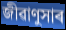
জীৱাণুসাৰ